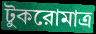
টুকরোমাত্র